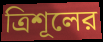
ত্রিশূলের